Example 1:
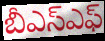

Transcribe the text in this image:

బీఎస్ఎఫ్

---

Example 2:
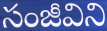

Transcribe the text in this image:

సంజీవిని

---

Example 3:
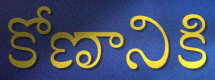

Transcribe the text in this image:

కోణానికి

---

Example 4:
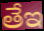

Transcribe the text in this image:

తేఇ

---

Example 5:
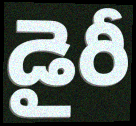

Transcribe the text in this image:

డైరీ